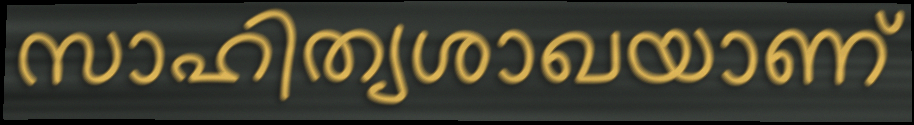
സാഹിത്യശാഖയാണ്